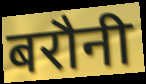
बरौनी